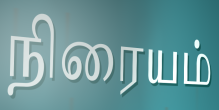
நிரையம்